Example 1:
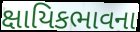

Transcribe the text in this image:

ક્ષાયિકભાવના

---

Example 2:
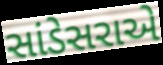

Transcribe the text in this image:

સાંડેસરાએ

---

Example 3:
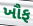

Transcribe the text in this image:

ખૌફ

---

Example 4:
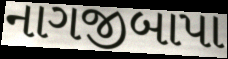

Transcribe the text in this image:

નાગજીબાપા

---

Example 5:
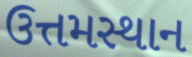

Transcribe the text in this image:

ઉત્તમસ્થાન